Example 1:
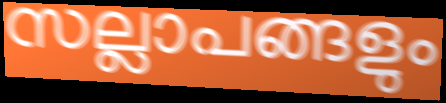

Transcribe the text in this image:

സല്ലാപങ്ങളും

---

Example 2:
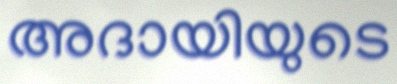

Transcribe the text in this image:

അദായിയുടെ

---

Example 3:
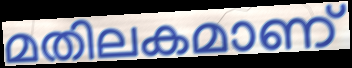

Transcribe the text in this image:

മതിലകമാണ്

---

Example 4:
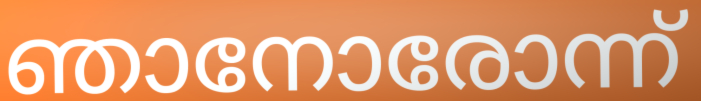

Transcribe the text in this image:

ഞാനോരോന്ന്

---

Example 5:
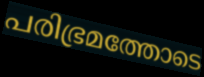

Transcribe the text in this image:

പരിഭ്രമത്തോടെ